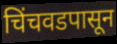
चिंचवडपासून